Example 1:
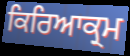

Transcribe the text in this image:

ਕਿਰਿਆਕ੍ਰਮ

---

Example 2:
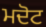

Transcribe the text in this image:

ਮਦੋਟ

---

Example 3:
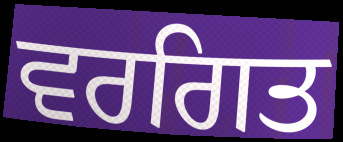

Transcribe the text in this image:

ਵਰਗਿਤ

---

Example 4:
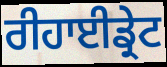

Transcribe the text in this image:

ਰੀਹਾਈਡ੍ਰੇਟ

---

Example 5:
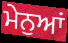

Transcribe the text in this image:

ਮੇਨੁਆਂ